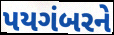
પયગંબરને